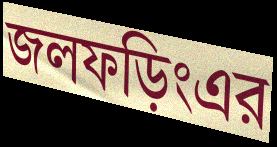
জলফড়িংএর